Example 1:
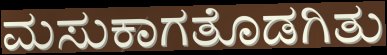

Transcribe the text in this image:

ಮಸುಕಾಗತೊಡಗಿತು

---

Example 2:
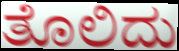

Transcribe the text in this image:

ತೊಲಿದು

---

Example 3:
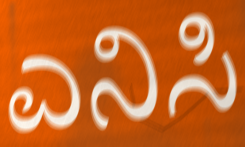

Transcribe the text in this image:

ಎನಿಸಿ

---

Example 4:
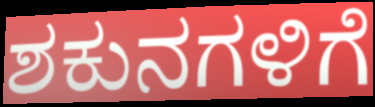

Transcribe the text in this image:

ಶಕುನಗಳಿಗೆ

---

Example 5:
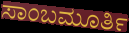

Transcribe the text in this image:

ಸಾಂಬಮೂರ್ತಿ